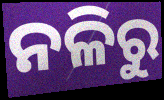
ନଳିରୁ